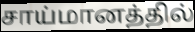
சாய்மானத்தில்